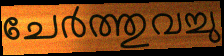
ചേർത്തുവച്ചു